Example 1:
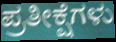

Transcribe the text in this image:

ಪ್ರತೀಕ್ಷೆಗಳು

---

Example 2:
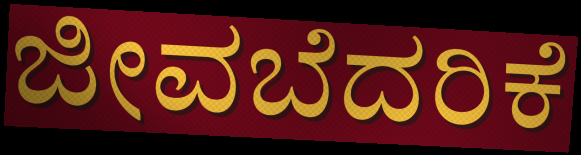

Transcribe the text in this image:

ಜೀವಬೆದರಿಕೆ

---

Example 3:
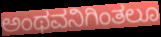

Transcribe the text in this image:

ಅಂಥವನಿಗಿಂತಲೂ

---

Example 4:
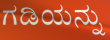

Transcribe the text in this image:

ಗಡಿಯನ್ನು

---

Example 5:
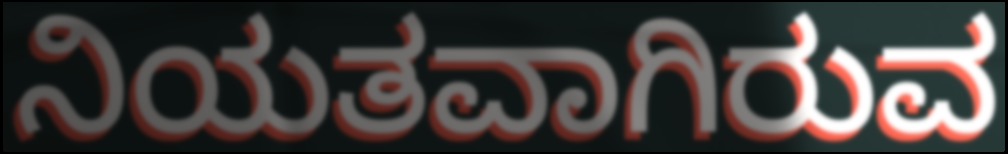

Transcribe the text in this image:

ನಿಯತವಾಗಿರುವ